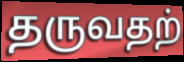
தருவதற்